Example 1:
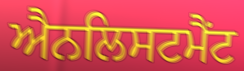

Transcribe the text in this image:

ਐਨਲਿਸਟਮੈਂਟ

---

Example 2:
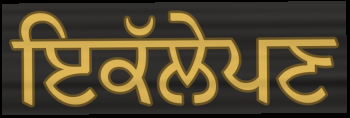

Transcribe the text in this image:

ਇਕੱਲੇਪਣ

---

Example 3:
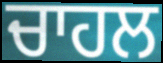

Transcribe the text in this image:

ਚਾਹਲ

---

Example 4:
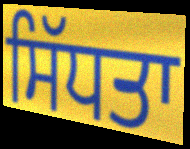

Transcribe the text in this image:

ਸਿੱਧਤਾ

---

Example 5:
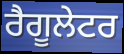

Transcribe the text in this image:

ਰੈਗੂਲੇਟਰ